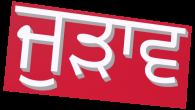
ਜੁੜਾਵ